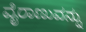
ವೈರಾಣುವನ್ನು